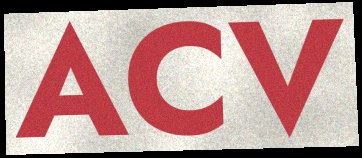
ACV